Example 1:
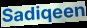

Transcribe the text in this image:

Sadiqeen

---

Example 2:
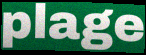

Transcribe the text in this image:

plage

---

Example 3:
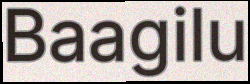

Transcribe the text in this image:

Baagilu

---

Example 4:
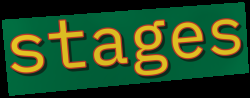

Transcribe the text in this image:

stages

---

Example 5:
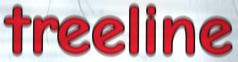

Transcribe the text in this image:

treeline